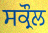
ਸਕ੍ਰੌਲ